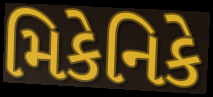
મિકેનિકે